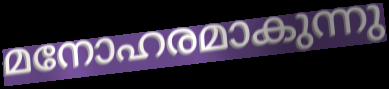
മനോഹരമാകുന്നു